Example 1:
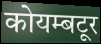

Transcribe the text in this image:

कोयम्‍बटूर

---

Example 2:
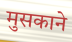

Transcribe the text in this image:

मुसकाने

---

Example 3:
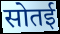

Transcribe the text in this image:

सोतई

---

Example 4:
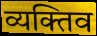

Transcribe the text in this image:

व्यक्तिव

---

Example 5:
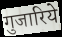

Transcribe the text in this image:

गुजारिये